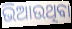
ଭିଆଉଥିବା